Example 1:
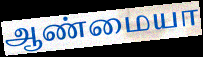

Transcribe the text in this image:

ஆண்மையா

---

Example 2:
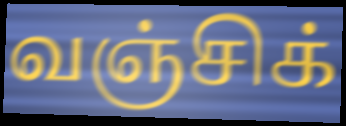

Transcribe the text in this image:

வஞ்சிக்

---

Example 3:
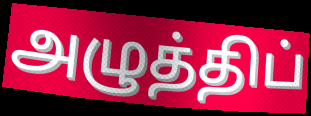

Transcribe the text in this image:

அழுத்திப்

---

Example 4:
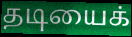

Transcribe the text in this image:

தடியைக்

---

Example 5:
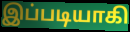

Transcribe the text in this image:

இப்படியாகி